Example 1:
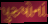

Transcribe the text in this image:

પુરુષોનાં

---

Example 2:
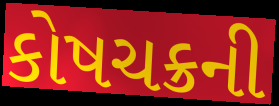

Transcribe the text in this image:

કોષચક્રની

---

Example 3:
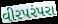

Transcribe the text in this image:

વીરપરંપરા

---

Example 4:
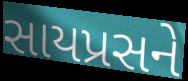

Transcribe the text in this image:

સાયપ્રસને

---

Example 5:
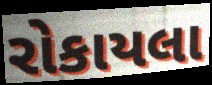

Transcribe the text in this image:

રોકાયલા